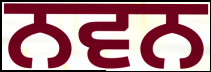
ਨਵਨ